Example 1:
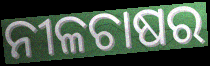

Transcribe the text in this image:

ନୀଳଚାଷର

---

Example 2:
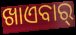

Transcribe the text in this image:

ଖାଏବାର୍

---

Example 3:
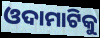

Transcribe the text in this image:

ଓଦାମାଟିକୁ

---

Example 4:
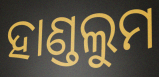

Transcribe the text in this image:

ହାଣ୍ଡଲୁମ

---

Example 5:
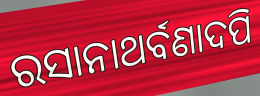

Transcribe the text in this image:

ରସାନାଥର୍ବଣାଦପି